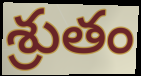
శ్రుతం